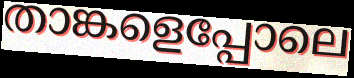
താങ്കളെപ്പോലെ